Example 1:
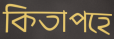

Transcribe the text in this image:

কিতাপহে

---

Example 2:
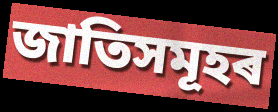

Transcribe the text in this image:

জাতিসমূহৰ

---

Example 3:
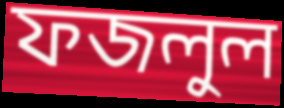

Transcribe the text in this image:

ফজলুল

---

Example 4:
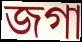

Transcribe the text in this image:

জগা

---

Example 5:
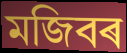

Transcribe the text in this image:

মজিবৰ